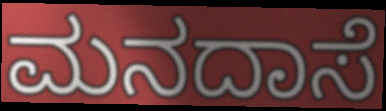
ಮನದಾಸೆ